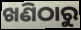
ଖଣିଠାରୁ